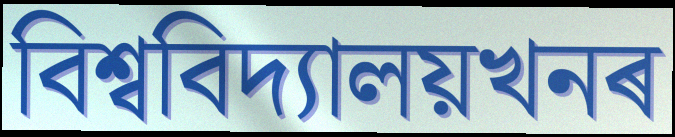
বিশ্ববিদ্যালয়খনৰ